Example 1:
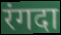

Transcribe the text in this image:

रंगदा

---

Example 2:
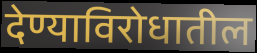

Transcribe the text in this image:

देण्याविरोधातील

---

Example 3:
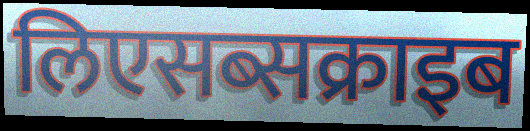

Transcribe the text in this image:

लिएसब्सक्राइब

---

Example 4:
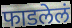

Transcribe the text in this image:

फाडलेलं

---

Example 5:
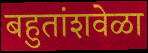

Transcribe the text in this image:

बहुतांशवेळा